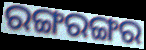
ରଙ୍ଗରଙ୍ଗର